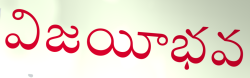
విజయీభవ